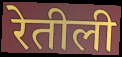
रेतीली